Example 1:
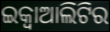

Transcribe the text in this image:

ଇକ୍ୱାଆଲିଟିର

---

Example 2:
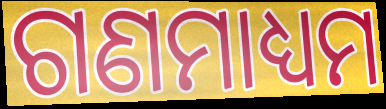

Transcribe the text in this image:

ଗଣମାଧ୍ୟମ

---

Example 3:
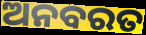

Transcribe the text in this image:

ଅନବରତ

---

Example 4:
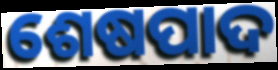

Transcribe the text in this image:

ଶେଷପାଦ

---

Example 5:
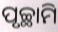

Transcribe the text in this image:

ପୃଚ୍ଛାମି